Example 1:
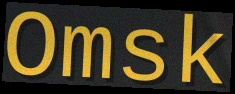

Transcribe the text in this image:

Omsk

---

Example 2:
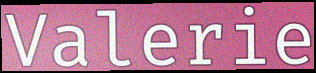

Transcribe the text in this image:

Valerie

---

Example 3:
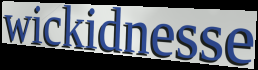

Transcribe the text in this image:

wickidnesse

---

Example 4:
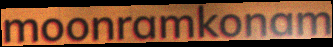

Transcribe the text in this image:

moonramkonam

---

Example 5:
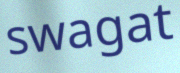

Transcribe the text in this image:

swagat